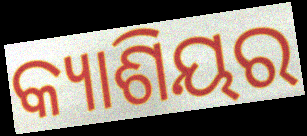
କ୍ୟାଶିୟର